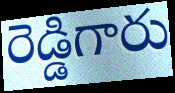
రెడ్డిగారు